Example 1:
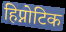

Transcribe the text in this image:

हिप्नोटिक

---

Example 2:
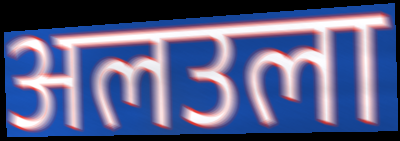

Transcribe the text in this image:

अलउला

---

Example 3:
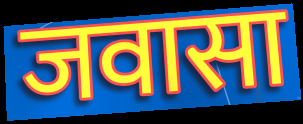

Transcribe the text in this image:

जवासा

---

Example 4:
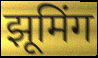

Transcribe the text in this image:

झूमिंग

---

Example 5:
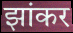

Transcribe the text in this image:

झांकर